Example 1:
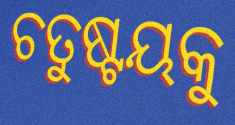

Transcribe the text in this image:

ଚତୁଷ୍ଟୟକୁ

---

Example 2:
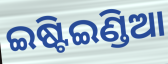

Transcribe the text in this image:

ଇଷ୍ଟିଇଣ୍ଡିଆ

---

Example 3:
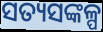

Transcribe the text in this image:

ସତ୍ୟସଙ୍କଳ୍ପ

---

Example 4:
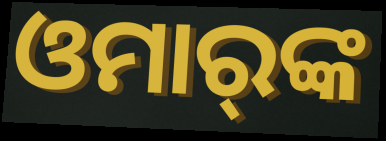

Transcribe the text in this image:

ଓମାର୍‌ଙ୍କ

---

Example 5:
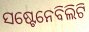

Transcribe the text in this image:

ସଷ୍ଟେନେବିଲିଟି